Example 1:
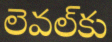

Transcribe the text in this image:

లెవల్‌కు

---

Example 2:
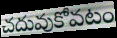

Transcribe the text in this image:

చదువుకోవటం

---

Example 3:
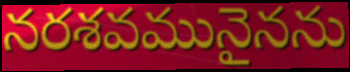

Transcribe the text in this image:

నరశవమునైనను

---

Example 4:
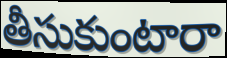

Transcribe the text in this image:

తీసుకుంటారా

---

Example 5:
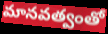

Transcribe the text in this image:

మానవత్వంతో